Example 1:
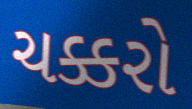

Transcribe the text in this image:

ચક્કરો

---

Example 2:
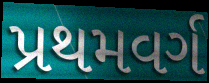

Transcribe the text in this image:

પ્રથમવર્ગ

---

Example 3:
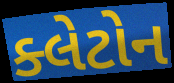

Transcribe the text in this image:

ક્લેટોન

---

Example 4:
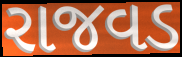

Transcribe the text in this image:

રાજવડ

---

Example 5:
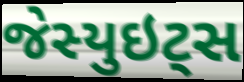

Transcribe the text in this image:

જેસ્યુઇટ્સ